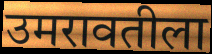
उमरावतीला